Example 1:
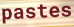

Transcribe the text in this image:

pastes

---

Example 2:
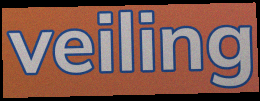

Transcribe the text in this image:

veiling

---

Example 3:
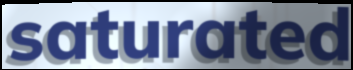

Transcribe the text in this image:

saturated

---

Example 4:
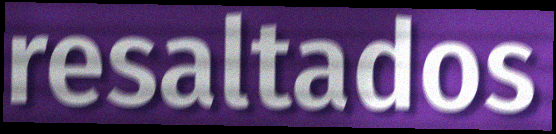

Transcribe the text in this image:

resaltados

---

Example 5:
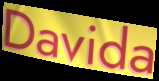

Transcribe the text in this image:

Davida